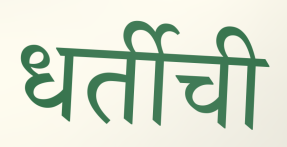
धर्तीची